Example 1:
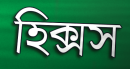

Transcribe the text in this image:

হিক্সস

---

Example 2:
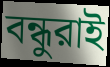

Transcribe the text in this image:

বন্ধুরাই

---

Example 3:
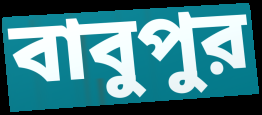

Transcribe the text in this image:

বাবুপুর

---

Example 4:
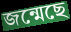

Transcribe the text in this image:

জন্মেছে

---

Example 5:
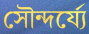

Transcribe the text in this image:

সৌন্দর্য্যে